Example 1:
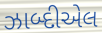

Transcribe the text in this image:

ઝાબ્દીએલ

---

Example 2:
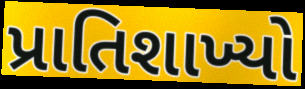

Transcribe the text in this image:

પ્રાતિશાખ્યો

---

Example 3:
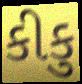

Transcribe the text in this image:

કીકુ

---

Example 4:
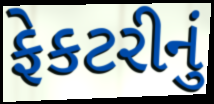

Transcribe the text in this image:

ફેકટરીનું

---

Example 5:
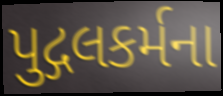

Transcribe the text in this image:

પુદ્ગલકર્મના